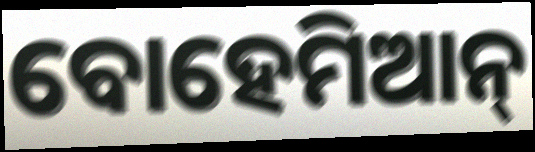
ବୋହେମିଆନ୍